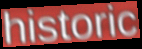
historic